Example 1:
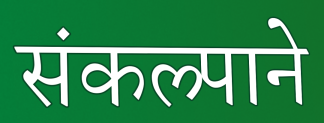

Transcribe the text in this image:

संकल्पाने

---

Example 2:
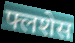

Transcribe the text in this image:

फ्लशेस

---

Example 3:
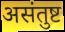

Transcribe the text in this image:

असंतुष्ट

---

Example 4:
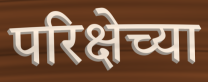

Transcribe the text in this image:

परिक्षेच्या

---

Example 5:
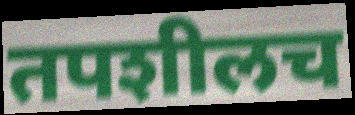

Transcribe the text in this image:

तपशीलच